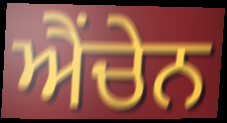
ਐਂਚੇਨ